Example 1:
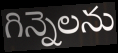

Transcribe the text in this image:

గిన్నెలను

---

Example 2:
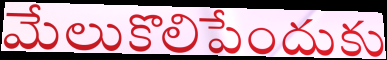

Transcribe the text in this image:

మేలుకొలిపేందుకు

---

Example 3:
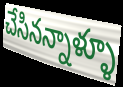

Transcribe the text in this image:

చేసినన్నాళ్ళూ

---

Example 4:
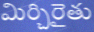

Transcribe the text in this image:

మిర్చిరైతు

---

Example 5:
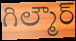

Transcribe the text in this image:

గిల్మౌర్